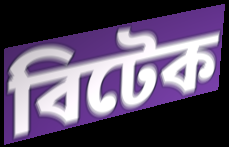
বিটেক